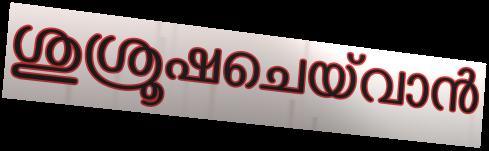
ശുശ്രൂഷചെയ്‌വാൻ